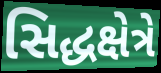
સિદ્ધક્ષેત્રે